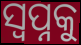
ସ୍ଵପ୍ନକୁ